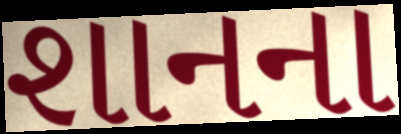
શાનના